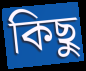
কিছু